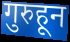
गुरुहून